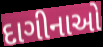
દાગીનાઓ